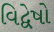
વિદ્વેષો